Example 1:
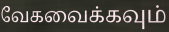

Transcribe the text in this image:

வேகவைக்கவும்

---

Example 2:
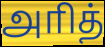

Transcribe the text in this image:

அரித்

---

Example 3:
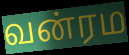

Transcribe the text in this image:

வன்ரம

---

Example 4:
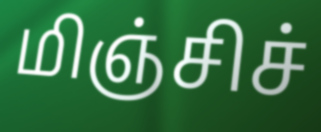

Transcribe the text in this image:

மிஞ்சிச்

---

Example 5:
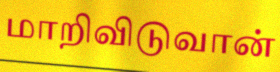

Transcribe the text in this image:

மாறிவிடுவான்